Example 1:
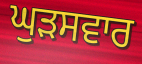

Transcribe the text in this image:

ਘੁੜਸਵਾਰ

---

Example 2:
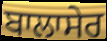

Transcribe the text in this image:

ਬਾਲਾਸੇਰ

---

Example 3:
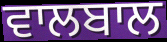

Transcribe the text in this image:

ਵਾਲਬਾਲ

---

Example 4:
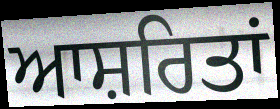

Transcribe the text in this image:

ਆਸ਼ਰਿਤਾਂ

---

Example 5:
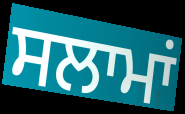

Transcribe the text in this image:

ਸਲਾਮਾਂ